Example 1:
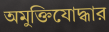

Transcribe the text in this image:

অমুক্তিযোদ্ধার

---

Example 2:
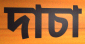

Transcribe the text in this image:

দাচা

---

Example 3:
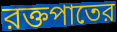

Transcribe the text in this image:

রক্তপাতের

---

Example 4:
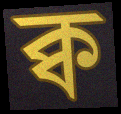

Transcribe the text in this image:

ক্ব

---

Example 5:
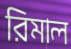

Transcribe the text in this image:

রিমাল